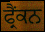
ਫ੍ਰੈਂਕਨ